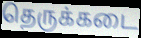
தெருக்கடை